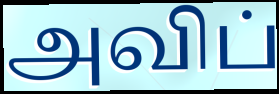
அவிப்